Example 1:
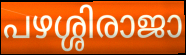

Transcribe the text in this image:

പഴശ്ശിരാജാ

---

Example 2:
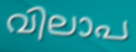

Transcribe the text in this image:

വിലാപ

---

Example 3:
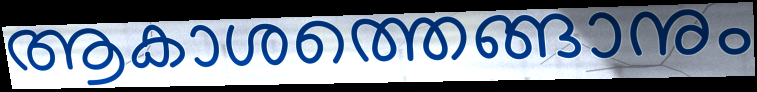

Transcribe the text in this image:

ആകാശത്തെങ്ങാനും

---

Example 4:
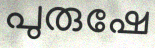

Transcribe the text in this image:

പുരുഷേ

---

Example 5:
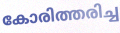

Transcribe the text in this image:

കോരിത്തരിച്ച